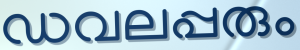
ഡവലപ്പരും